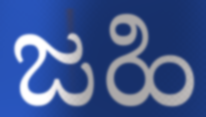
ಜಹಿ